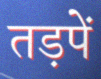
तड़पें